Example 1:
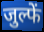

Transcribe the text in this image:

जुल्फें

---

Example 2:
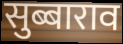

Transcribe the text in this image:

सुब्‍बाराव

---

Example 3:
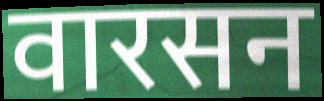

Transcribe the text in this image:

वारसन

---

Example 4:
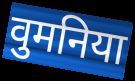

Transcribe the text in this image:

वुमनिया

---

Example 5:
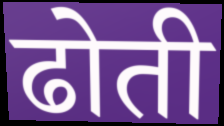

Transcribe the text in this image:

ढोती